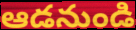
ఆడనుండి